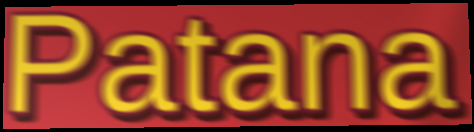
Patana